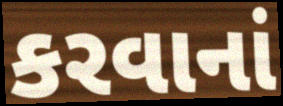
કરવાનાં